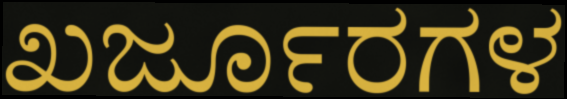
ಖರ್ಜೂರಗಳ